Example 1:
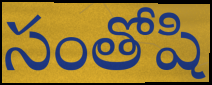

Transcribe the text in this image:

సంతోషి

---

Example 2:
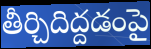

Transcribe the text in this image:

తీర్చిదిద్దడంపై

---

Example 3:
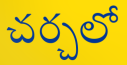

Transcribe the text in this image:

చర్చలో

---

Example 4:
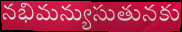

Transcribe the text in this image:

నభిమన్యుసుతునకు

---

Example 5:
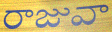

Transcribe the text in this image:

రాజువా